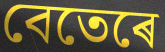
বেতেৰে